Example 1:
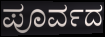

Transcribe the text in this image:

ಪೂರ್ವದ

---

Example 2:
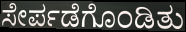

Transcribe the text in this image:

ಸೇರ್ಪಡೆಗೊಂಡಿತು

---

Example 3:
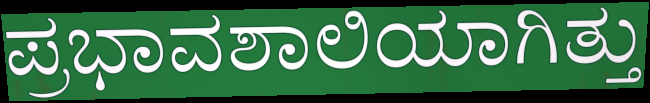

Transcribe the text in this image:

ಪ್ರಭಾವಶಾಲಿಯಾಗಿತ್ತು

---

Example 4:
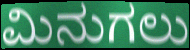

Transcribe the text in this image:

ಮಿನುಗಲು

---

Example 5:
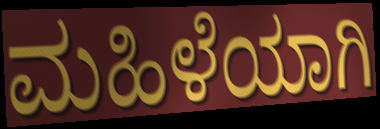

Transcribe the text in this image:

ಮಹಿಳೆಯಾಗಿ